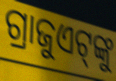
ଗ୍ରାଜୁଏଟ୍‌ଙ୍କୁ